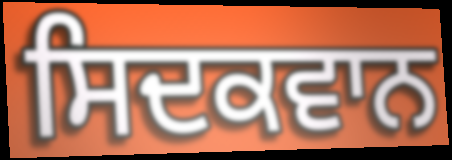
ਸਿਦਕਵਾਨ